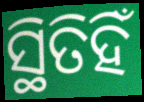
ସ୍ଥିତିହିଁ